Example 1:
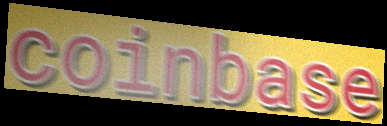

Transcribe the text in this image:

coinbase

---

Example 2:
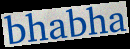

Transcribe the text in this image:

bhabha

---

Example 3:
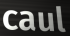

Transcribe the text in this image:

caul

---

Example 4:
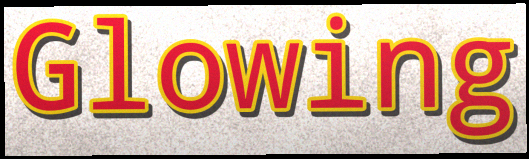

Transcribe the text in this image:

Glowing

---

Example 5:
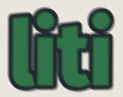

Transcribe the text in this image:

liti